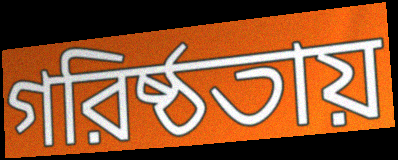
গরিষ্ঠতায়